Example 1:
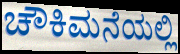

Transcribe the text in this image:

ಚೌಕಿಮನೆಯಲ್ಲಿ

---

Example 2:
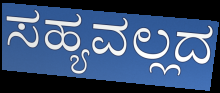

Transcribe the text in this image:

ಸಹ್ಯವಲ್ಲದ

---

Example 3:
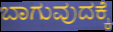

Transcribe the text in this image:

ಬಾಗುವುದಕ್ಕೆ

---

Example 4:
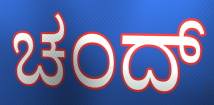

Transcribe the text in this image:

ಚಂದ್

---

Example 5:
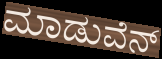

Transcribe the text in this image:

ಮಾಡುವೆನ್